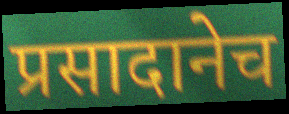
प्रसादानेच